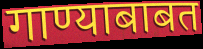
गाण्याबाबत